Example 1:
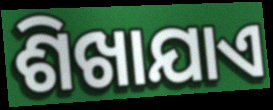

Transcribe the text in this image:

ଶିଖାଯାଏ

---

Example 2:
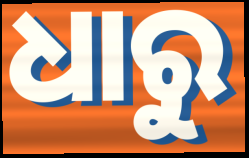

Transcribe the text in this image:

ଧାରୁ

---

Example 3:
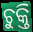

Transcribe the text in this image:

ଚୁକ୍ତି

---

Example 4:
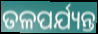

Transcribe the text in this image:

ତଳପର୍ଯ୍ୟନ୍ତ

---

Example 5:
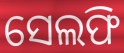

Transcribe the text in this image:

ସେଲଫି